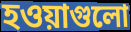
হওয়াগুলো